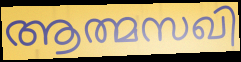
ആത്മസഖി